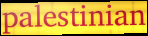
palestinian